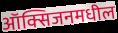
ऑक्सिजनमधील